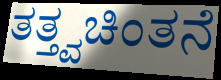
ತತ್ತ್ವಚಿಂತನೆ